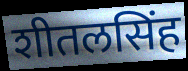
शीतलसिंह